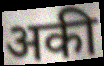
अकी